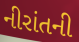
નીરાંતની